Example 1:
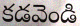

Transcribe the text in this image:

కడవెండి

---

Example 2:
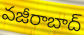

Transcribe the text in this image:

వజీరాబాద్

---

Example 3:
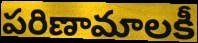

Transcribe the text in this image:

పరిణామాలకీ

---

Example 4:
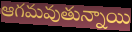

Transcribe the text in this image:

ఆగమవుతున్నాయి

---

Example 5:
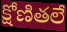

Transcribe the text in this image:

క్షోణితలే